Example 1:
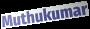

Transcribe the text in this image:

Muthukumar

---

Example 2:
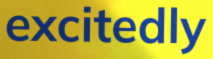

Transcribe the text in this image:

excitedly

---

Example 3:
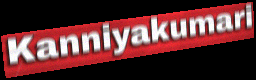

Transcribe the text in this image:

Kanniyakumari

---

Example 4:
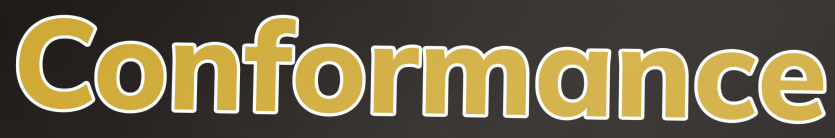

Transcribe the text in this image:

Conformance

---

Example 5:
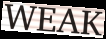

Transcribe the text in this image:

WEAK